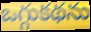
ఒగ్గుకథను